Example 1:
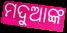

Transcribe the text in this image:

ମଦୁଆଙ୍କ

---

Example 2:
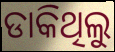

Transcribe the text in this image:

ଡାକିଥିଲୁ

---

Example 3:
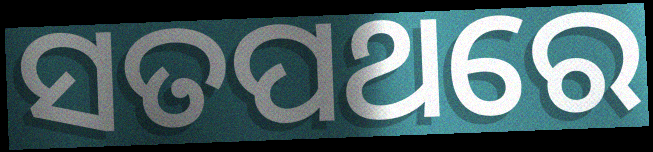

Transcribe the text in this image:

ସତପଥରେ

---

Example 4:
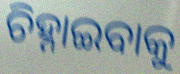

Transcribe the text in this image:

ଚିହ୍ନାଇବାକୁ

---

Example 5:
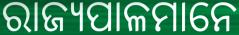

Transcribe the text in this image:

ରାଜ୍ୟପାଳମାନେ